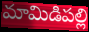
మామిడిపల్లి